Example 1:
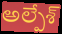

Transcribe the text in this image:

అల్పేశ్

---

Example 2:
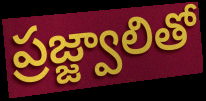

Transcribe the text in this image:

ప్రజ్జ్వాలితో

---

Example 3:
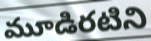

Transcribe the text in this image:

మూడిరటిని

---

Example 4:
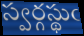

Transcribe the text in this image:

స్వర్గస్థుఁ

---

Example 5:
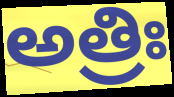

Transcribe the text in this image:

అత్రిః